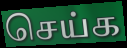
செய்க